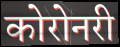
कोरोनरी